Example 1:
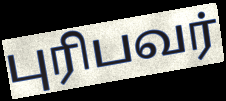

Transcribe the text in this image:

புரிபவர்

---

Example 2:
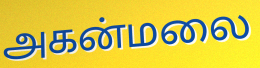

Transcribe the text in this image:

அகன்மலை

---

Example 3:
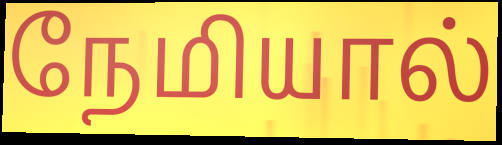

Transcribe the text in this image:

நேமியால்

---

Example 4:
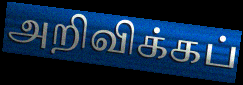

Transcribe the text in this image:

அறிவிக்கப்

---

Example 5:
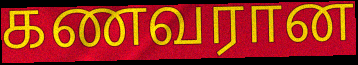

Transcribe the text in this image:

கணவரான